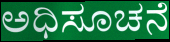
ಅಧಿಸೂಚನೆ